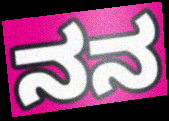
ನನ